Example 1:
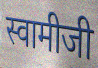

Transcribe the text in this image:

स्वामीजी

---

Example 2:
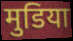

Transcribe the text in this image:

मुडिया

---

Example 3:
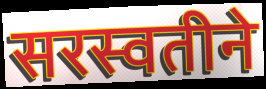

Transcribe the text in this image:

सरस्वतीने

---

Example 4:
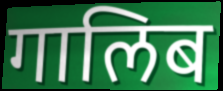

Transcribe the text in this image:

गालिब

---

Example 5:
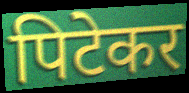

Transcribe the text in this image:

पिटेकर